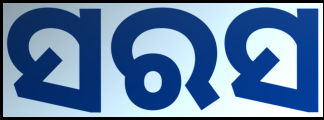
ସରସ